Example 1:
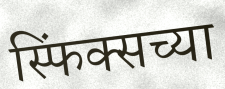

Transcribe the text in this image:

स्फिंक्सच्या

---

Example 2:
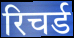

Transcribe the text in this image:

रिचर्ड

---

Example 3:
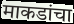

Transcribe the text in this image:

माकडांचा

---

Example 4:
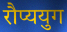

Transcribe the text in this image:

रौप्ययुग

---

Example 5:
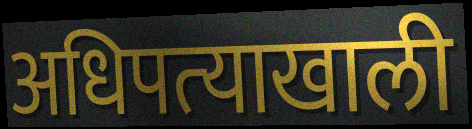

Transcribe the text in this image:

अधिपत्‍याखाली